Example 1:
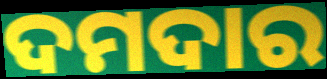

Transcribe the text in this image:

ଦମଦାର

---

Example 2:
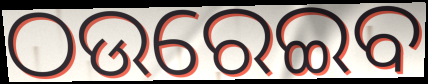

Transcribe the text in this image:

ଠଉରେଇବ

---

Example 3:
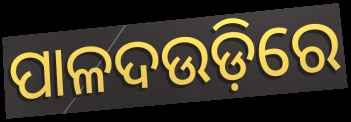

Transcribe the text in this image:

ପାଳଦଉଡ଼ିରେ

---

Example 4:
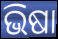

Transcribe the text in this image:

ଭିଷା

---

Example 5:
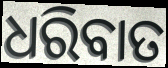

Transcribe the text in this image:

ଧରିବାତ